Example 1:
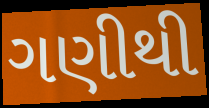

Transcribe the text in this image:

ગણીથી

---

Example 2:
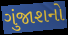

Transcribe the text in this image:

ગુંજાશનો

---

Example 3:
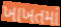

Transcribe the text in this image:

ખાખતમાં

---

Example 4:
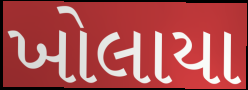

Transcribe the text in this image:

ખોલાયા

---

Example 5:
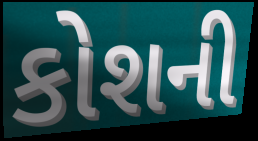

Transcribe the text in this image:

કોશની